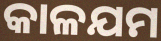
କାଳଯମ